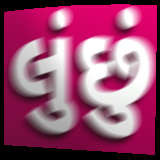
લુંછું